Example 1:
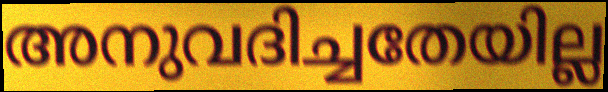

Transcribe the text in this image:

അനുവദിച്ചതേയില്ല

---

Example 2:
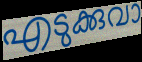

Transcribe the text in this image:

എടുക്കുവാ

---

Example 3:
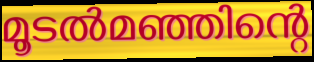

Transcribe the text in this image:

മൂടൽമഞ്ഞിന്റെ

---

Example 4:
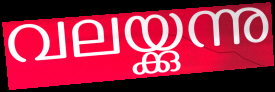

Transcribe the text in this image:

വലയ്ക്കുന്നു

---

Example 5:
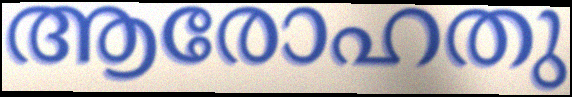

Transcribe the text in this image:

ആരോഹതു